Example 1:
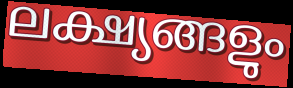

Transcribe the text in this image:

ലക്ഷ്യങ്ങളും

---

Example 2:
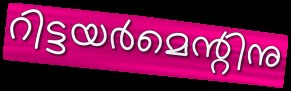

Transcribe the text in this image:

റിട്ടയർമെന്റിനു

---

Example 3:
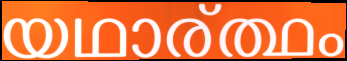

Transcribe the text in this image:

യഥാര്ത്ഥം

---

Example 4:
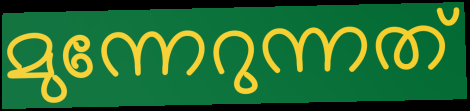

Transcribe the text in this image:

മുന്നേറുന്നത്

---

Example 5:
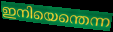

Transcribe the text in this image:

ഇനിയെന്തെന്ന